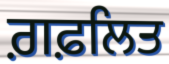
ਗ਼ਫ਼ਲਿਤ